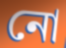
নো